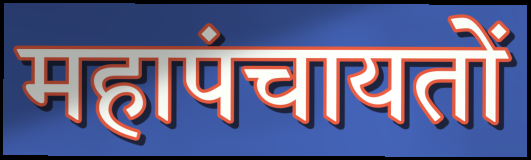
महापंचायतों